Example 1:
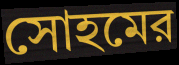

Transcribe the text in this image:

সোহমের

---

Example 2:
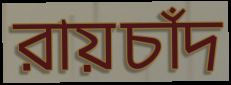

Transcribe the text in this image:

রায়চাঁদ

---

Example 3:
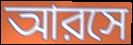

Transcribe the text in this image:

আরসে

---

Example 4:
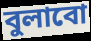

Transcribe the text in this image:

বুলাবো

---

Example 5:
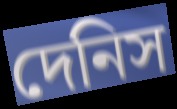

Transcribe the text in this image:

দেনিস